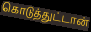
கொடுத்துட்டான்